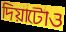
দিয়াটোও